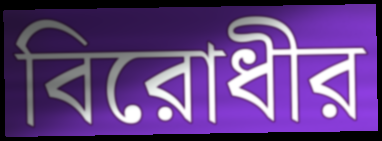
বিরোধীর